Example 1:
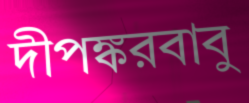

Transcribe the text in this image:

দীপঙ্করবাবু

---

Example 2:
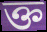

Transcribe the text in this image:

ক্ত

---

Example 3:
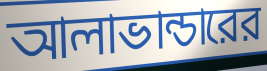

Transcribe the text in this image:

আলাভান্ডারের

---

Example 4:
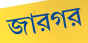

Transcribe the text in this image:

জারগর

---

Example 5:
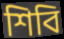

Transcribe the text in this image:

শিবি